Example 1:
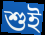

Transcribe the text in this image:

শুই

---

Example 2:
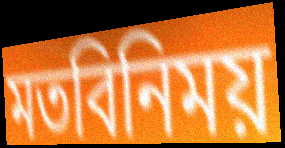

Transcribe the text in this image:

মতবিনিময়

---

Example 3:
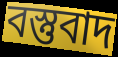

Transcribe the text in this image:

বস্তুবাদ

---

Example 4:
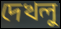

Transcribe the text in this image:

দেখলু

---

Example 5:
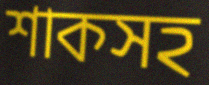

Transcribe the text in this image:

শাকসহ